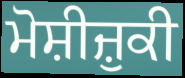
ਮੋਸ਼ੀਜ਼ੁਕੀ